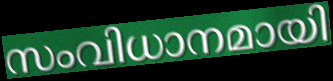
സംവിധാനമായി